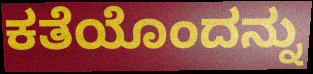
ಕತೆಯೊಂದನ್ನು